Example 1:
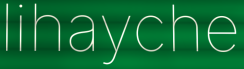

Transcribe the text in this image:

lihayche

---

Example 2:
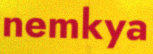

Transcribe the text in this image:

nemkya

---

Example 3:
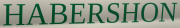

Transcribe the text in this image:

HABERSHON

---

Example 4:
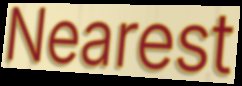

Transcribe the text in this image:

Nearest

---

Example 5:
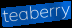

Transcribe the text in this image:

teaberry